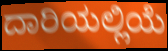
ದಾರಿಯಲ್ಲಿಯೆ